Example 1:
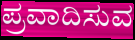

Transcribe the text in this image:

ಪ್ರವಾದಿಸುವ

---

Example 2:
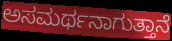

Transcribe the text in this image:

ಅಸಮರ್ಥನಾಗುತ್ತಾನೆ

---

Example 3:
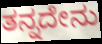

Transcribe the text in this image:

ತನ್ನದೇನು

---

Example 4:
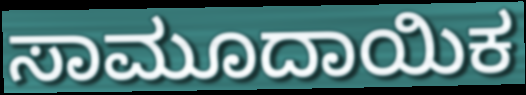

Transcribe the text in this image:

ಸಾಮೂದಾಯಿಕ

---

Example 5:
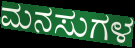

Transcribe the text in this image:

ಮನಸುಗಳ